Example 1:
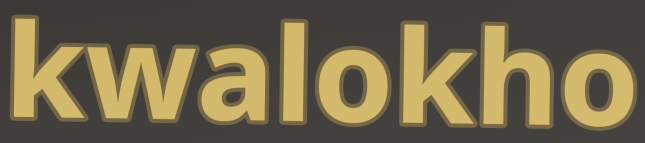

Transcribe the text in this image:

kwalokho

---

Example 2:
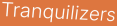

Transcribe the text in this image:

Tranquilizers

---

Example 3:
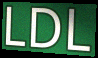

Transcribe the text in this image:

LDL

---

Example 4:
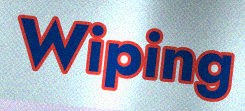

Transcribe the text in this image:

Wiping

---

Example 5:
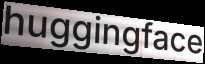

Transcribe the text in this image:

huggingface